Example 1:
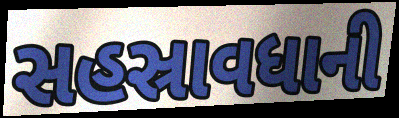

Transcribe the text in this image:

સહસ્રાવધાની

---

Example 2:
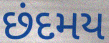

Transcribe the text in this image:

છંદમય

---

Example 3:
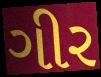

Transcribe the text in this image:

ગીર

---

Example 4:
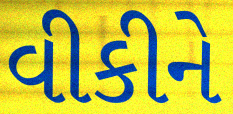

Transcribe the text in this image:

વીકીને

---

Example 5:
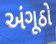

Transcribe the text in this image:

અંગૂઠો